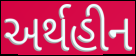
અર્થહીન